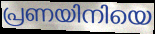
പ്രണയിനിയെ